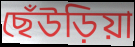
ছেঁউড়িয়া